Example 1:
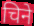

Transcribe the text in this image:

चिने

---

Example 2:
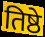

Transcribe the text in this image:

तिष्ठे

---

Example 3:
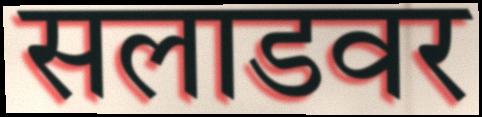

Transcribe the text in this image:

सलाडवर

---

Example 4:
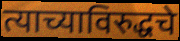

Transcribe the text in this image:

त्याच्याविरुद्धचे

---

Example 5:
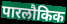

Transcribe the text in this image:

पारलौकिक